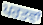
ਪਰਤਵਾਂ